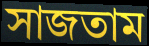
সাজতাম